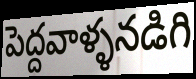
పెద్దవాళ్ళనడిగి